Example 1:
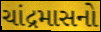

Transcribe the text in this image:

ચાંદ્રમાસનો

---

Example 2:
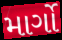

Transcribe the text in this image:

માર્ગો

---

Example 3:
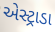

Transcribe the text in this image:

એસ્ટ્રાડા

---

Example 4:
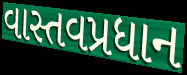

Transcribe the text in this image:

વાસ્તવપ્રધાન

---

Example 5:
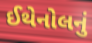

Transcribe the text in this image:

ઈથેનોલનું